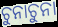
ଚୁନାଚୁନା